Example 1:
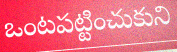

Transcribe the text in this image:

ఒంటపట్టించుకుని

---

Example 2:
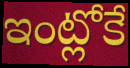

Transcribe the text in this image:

ఇంట్లోకే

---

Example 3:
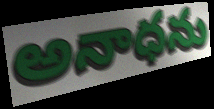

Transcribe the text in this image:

అనాధను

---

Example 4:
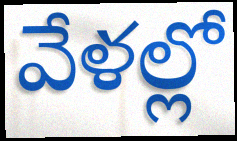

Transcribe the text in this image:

వేళల్లో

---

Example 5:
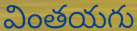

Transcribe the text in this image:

వింతయగు